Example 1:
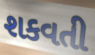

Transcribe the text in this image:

શકવતી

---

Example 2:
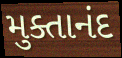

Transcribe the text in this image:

મુક્તાનંદ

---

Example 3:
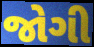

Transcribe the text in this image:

જોગી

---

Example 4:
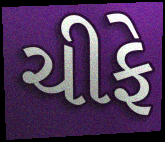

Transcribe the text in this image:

ચીફે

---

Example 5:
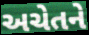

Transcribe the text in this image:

અચેતને